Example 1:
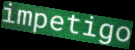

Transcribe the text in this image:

impetigo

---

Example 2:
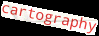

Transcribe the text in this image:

cartography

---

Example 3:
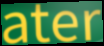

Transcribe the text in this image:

ater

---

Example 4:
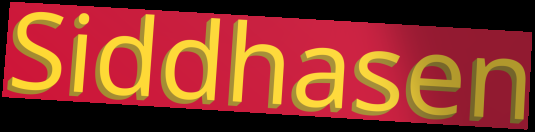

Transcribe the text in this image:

Siddhasen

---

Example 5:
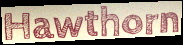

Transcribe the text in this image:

Hawthorn